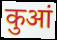
कुआं